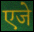
एजे